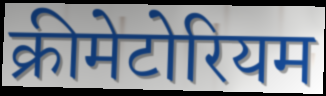
क्रीमेटोरियम